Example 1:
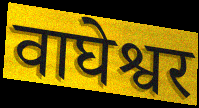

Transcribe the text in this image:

वाघेश्वर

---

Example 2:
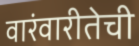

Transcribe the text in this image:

वारंवारीतेची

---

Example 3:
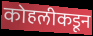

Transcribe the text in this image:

कोहलीकडून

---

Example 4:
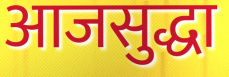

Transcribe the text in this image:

आजसुद्धा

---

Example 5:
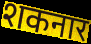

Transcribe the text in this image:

शकनार